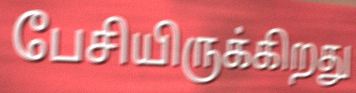
பேசியிருக்கிறது